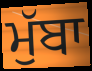
ਮੁੱਬਾ